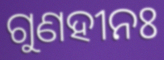
ଗୁଣହୀନଃ